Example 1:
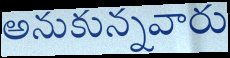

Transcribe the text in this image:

అనుకున్నవారు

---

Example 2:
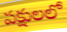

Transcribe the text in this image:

పక్షులలో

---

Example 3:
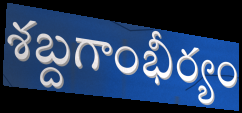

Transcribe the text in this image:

శబ్దగాంభీర్యం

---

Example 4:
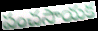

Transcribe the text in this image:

పంచసాయక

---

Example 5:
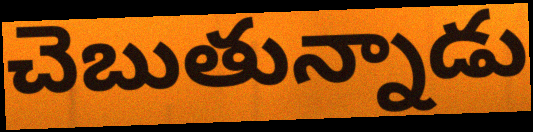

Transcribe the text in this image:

చెబుతున్నాడు